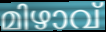
മിഴാവ്